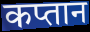
कप्‍तान